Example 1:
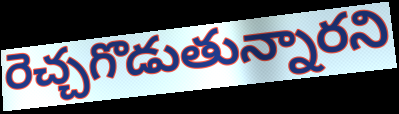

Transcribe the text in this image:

రెచ్చగొడుతున్నారని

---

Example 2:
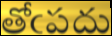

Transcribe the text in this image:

తోఁపదు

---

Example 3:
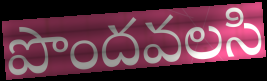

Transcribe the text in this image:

పొందవలసి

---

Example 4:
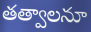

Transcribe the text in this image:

తత్వాలనూ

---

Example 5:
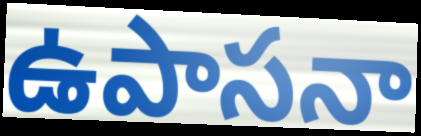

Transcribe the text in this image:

ఉపాసనా